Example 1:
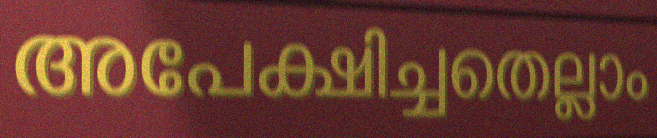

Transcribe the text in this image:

അപേക്ഷിച്ചതെല്ലാം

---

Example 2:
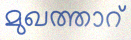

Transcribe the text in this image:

മുഖത്താറ്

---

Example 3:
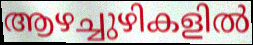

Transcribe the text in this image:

ആഴച്ചുഴികളിൽ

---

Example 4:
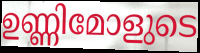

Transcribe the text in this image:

ഉണ്ണിമോളുടെ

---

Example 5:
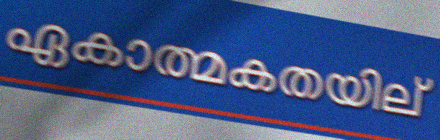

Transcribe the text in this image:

ഏകാത്മകതയില്